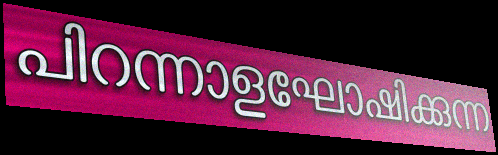
പിറന്നാളഘോഷിക്കുന്ന